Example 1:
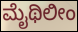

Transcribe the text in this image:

ಮೈಥಿಲೀಂ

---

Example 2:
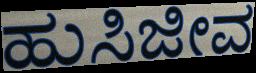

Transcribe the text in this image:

ಹುಸಿಜೀವ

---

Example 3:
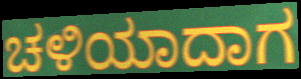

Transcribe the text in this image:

ಚಳಿಯಾದಾಗ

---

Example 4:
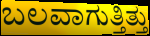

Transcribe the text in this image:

ಬಲವಾಗುತ್ತಿತ್ತು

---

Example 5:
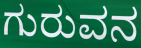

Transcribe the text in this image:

ಗುರುವನ